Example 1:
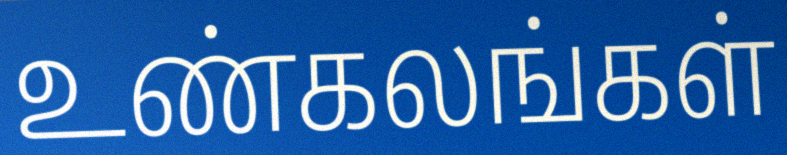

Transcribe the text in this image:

உண்கலங்கள்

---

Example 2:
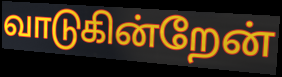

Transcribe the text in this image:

வாடுகின்றேன்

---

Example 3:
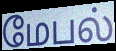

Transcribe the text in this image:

மேபல்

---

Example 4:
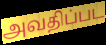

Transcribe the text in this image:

அவதிப்பட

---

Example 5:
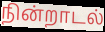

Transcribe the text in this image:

நின்றாடல்